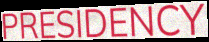
PRESIDENCY